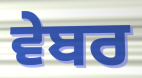
ਵੇਬਰ